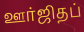
ஊர்ஜிதப்